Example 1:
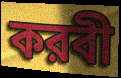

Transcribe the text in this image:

করবী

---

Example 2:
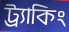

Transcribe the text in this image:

ট্র্যাকিং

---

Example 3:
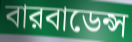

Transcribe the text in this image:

বারবাডেন্স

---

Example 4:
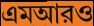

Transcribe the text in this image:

এমআরও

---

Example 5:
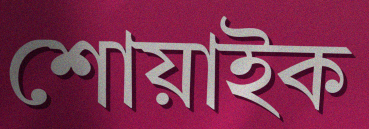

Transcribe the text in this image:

শোয়াইক